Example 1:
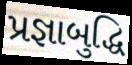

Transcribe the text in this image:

પ્રજ્ઞાબુદ્ધિ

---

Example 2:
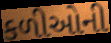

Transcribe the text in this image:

કળીઓની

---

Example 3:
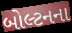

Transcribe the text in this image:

બોલ્ટનના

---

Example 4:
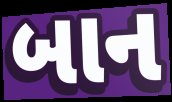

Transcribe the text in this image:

બાન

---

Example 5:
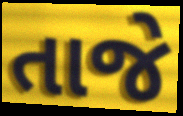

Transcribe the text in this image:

તાજે